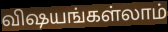
விஷயங்கள்லாம்